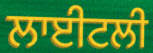
ਲਾਈਟਲੀ